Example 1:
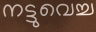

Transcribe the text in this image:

നട്ടുവെച്ച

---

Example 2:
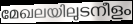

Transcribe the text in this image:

മേഖലയിലുടനീളം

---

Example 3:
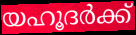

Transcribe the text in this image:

യഹൂദർക്ക്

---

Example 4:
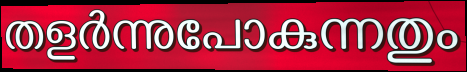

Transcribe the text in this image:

തളർന്നുപോകുന്നതും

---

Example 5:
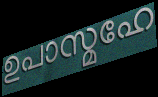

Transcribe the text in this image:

ഉപാസ്മഹേ